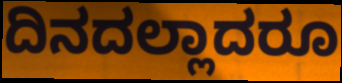
ದಿನದಲ್ಲಾದರೂ